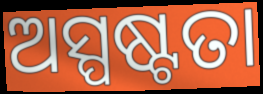
ଅସ୍ପଷ୍ଟତା